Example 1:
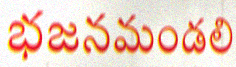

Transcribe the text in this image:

భజనమండలి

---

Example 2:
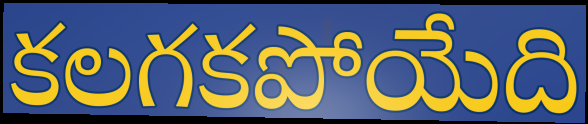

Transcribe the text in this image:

కలగకపోయేది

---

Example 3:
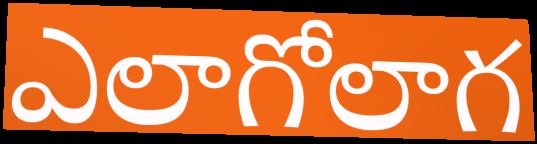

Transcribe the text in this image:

ఎలాగోలాగ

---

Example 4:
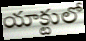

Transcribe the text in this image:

యాక్టులో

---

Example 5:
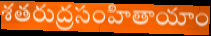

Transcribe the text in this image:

శతరుద్రసంహితాయాం